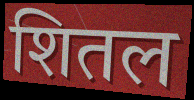
शितल